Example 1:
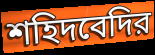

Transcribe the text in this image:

শহিদবেদির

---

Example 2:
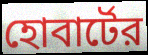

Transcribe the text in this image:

হোবার্টের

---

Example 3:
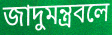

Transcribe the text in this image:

জাদুমন্ত্রবলে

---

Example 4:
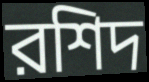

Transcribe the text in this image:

রশিদ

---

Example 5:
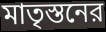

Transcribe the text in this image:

মাতৃস্তনের